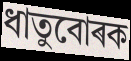
ধাতুবোৰক